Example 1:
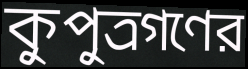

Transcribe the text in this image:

কুপুত্রগণের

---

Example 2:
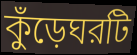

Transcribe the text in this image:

কুঁড়েঘরটি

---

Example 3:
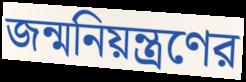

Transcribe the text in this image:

জন্মনিয়ন্ত্রণের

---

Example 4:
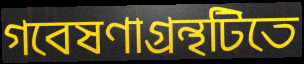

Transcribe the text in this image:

গবেষণাগ্রন্থটিতে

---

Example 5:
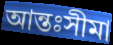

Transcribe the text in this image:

আন্তঃসীমা